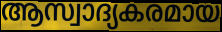
ആസ്വാദ്യകരമായ